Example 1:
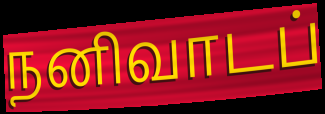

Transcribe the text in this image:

நனிவாடப்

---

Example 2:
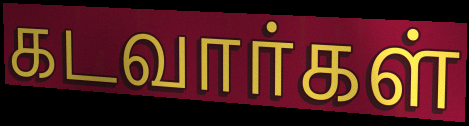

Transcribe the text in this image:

கடவார்கள்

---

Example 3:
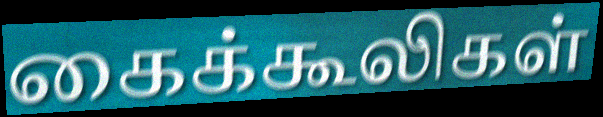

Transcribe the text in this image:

கைக்கூலிகள்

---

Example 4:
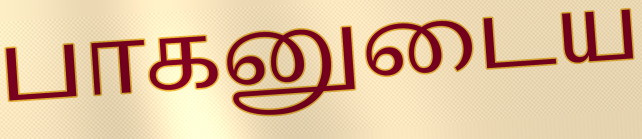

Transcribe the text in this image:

பாகனுடைய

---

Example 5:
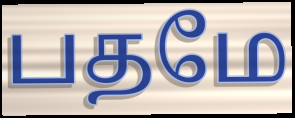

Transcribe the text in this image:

பதமே